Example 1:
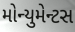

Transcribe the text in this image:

મોન્યુમેન્ટસ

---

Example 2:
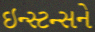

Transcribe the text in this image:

ઇન્સ્ટન્સને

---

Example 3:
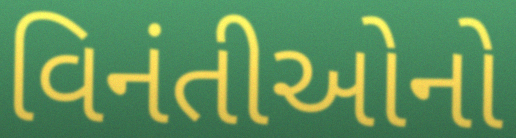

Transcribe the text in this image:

વિનંતીઓનો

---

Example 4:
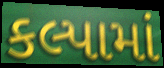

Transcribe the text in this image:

કલ્પામાં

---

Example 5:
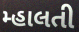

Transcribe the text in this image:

મ્હાલતી